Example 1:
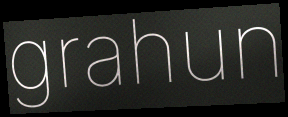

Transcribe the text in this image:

grahun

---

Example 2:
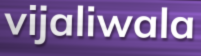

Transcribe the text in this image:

vijaliwala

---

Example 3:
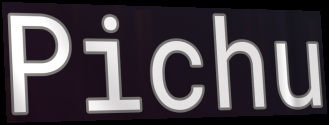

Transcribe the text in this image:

Pichu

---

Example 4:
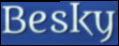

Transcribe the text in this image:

Besky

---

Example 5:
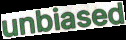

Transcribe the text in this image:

unbiased